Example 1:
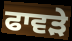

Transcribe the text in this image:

ਫਾਵੜੇ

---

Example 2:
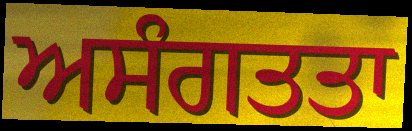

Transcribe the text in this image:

ਅਸੰਗਤਤਾ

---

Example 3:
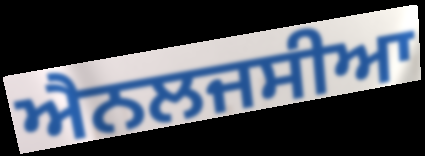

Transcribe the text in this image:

ਐਨਲਜਸੀਆ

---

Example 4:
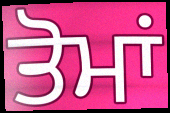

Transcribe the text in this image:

ਤੋਮਾਂ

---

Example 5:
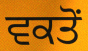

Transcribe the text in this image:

ਵਕਤੋਂ